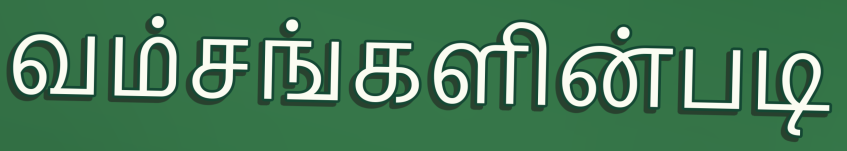
வம்சங்களின்படி